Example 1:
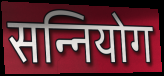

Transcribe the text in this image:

सन्नियोग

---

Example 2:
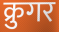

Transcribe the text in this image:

क्रुगर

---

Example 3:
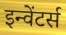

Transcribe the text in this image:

इन्वेंटर्स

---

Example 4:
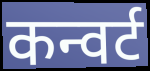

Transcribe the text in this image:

कन्वर्ट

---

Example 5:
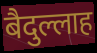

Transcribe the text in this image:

बैदुल्लाह